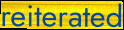
reiterated